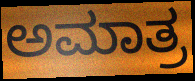
ಅಮಾತ್ರ